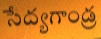
సేద్యగాండ్ర